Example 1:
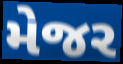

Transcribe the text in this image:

મેજર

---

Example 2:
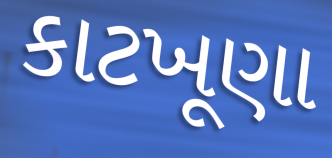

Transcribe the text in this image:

કાટખૂણા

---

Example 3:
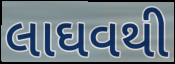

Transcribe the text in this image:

લાઘવથી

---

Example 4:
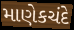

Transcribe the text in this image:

માણેકચંદે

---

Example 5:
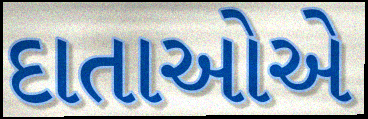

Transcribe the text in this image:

દાતાઓએ